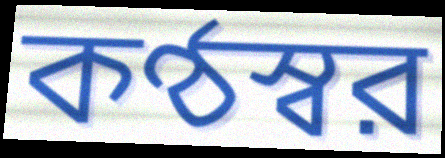
কণ্ঠস্বর